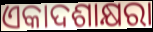
ଏକାଦଶାକ୍ଷରା